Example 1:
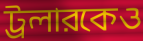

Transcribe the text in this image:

ট্রলারকেও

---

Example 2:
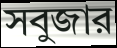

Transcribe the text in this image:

সবুজার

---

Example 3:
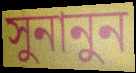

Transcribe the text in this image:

সুনানুন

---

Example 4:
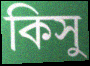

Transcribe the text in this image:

কিসু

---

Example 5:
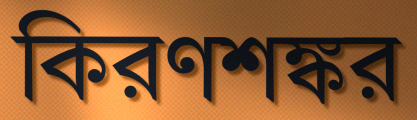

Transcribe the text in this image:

কিরণশঙ্কর